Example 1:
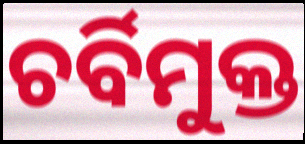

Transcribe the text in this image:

ଚର୍ବିମୁକ୍ତ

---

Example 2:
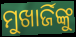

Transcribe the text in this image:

ମୁଖାର୍ଜିଙ୍କୁ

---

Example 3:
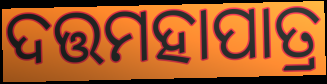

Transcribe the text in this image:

ଦତ୍ତମହାପାତ୍ର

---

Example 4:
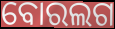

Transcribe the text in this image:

ବୋରଲଗ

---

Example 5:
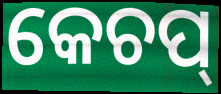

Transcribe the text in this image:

କେଚପ୍